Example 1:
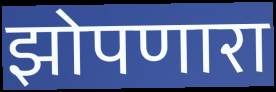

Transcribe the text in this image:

झोपणारा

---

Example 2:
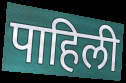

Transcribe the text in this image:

पाहिली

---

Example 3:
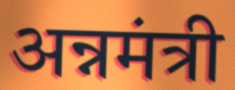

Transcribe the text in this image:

अन्नमंत्री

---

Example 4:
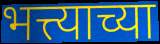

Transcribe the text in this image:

भत्त्याच्या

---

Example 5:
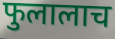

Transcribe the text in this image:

फुलालाच